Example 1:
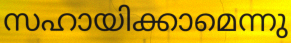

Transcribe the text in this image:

സഹായിക്കാമെന്നു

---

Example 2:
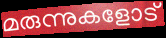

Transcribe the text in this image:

മരുന്നുകളോട്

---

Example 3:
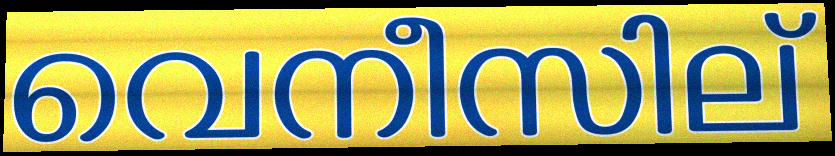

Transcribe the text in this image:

വെനീസില്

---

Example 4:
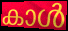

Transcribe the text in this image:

കാൾ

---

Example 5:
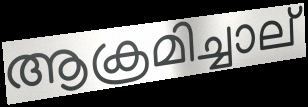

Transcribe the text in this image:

ആക്രമിച്ചാല്